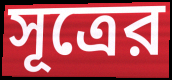
সূত্রের